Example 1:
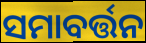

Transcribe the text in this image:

ସମାବର୍ତ୍ତନ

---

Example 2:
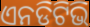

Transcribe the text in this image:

ଏନଡିଟିଭି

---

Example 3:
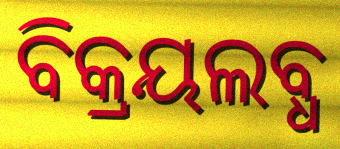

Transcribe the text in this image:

ବିକ୍ରୟଲବ୍ଧ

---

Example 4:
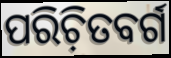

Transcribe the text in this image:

ପରିଚ଼ିତବର୍ଗ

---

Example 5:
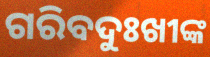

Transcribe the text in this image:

ଗରିବଦୁଃଖୀଙ୍କ